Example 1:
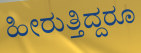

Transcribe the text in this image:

ಹೀರುತ್ತಿದ್ದರೂ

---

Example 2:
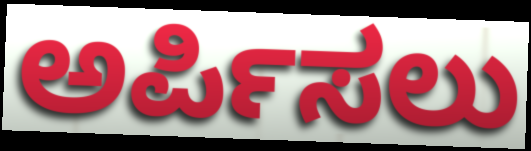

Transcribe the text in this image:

ಅರ್ಪಿಸಲು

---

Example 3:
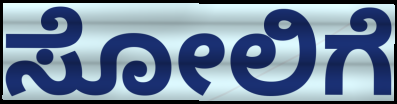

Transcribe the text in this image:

ಸೋಲಿಗೆ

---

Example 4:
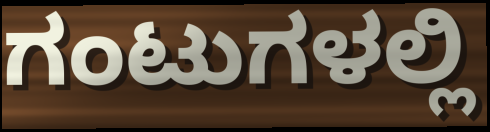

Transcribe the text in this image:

ಗಂಟುಗಳಲ್ಲಿ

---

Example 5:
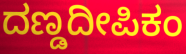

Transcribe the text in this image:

ದಣ್ಡದೀಪಿಕಂ